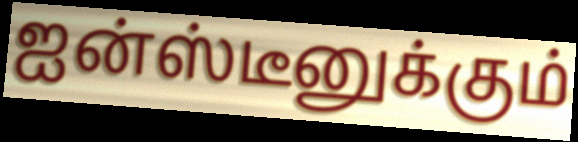
ஐன்ஸ்டீனுக்கும்